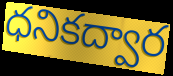
ధనికద్వార